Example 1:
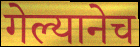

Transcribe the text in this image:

गेल्यानेच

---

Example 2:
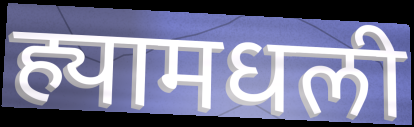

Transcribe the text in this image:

ह्यामधली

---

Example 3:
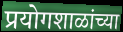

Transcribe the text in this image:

प्रयोगशाळांच्या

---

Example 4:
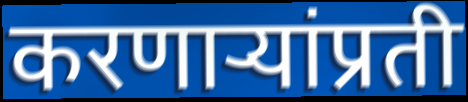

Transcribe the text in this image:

करणाऱ्यांप्रती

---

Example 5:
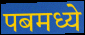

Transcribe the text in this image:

पबमध्ये